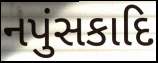
નપુંસકાદિ